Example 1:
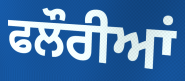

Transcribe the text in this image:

ਫਲੌਰੀਆਂ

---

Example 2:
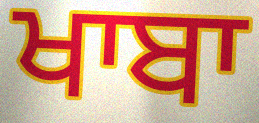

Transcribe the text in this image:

ਖਾਬਾ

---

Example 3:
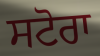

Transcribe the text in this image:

ਸਟੋਰਾ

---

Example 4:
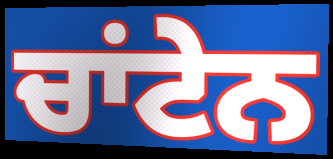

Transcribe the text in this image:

ਚਾਂਟੇਨ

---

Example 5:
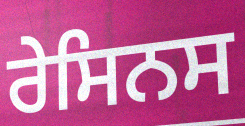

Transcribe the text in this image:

ਰੇਸਿਨਸ